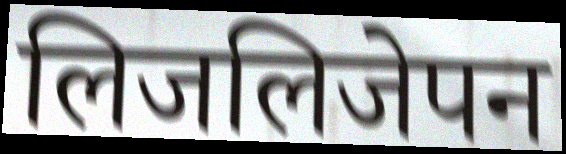
लिजलिजेपन